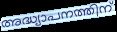
അദ്ധ്യാപനത്തിന്